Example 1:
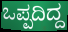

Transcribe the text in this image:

ಒಪ್ಪದಿದ್ದ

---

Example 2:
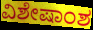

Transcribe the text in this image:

ವಿಶೇಷಾಂಶ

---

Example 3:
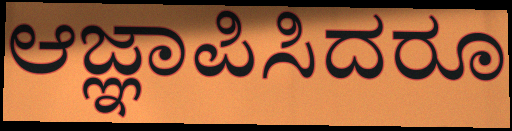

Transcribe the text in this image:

ಆಜ್ಞಾಪಿಸಿದರೂ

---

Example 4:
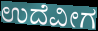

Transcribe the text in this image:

ಉದೆವೀಗ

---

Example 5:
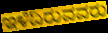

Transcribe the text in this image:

ಇಳಿದಿರುವವರು